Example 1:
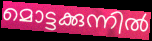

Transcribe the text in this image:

മൊട്ടക്കുന്നിൽ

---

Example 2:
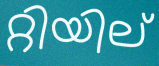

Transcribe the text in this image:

റ്റിയില്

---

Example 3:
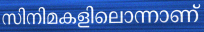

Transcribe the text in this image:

സിനിമകളിലൊന്നാണ്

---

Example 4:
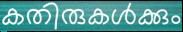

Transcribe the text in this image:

കതിരുകൾക്കും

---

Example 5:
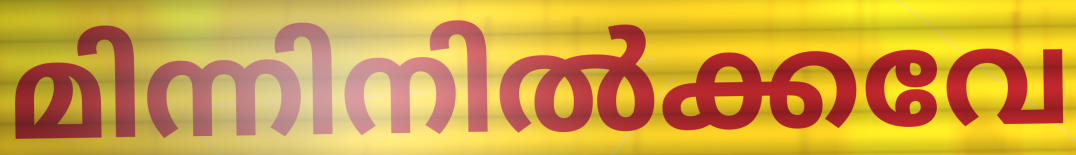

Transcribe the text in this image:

മിന്നിനിൽക്കവേ